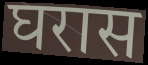
घरास